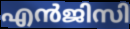
എൻജിസി